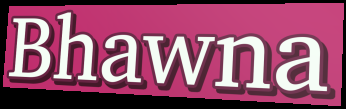
Bhawna